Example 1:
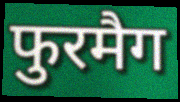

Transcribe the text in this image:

फुरमैग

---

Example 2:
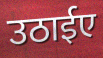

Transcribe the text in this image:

उठाईए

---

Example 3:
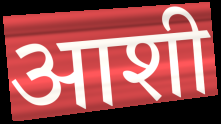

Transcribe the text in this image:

आशी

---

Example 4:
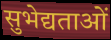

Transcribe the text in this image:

सुभेद्यताओं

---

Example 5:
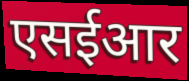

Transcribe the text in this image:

एसईआर